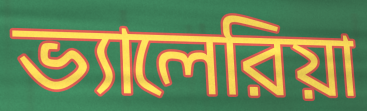
ভ্যালেরিয়া